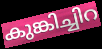
കുങ്കിച്ചിറ